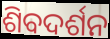
ଶିବଦର୍ଶନ